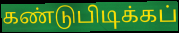
கண்டுபிடிக்கப்